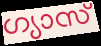
ഗ്യാസ്